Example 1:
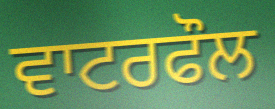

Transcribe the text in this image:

ਵਾਟਰਫੌਲ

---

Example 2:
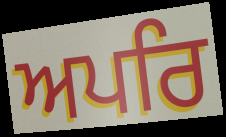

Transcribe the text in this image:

ਅਪਰਿ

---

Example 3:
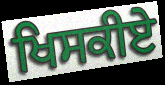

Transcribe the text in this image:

ਖਿਸਕੀਏ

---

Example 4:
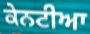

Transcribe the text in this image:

ਕੇਨਟੀਆ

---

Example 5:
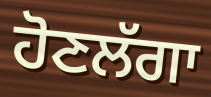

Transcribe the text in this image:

ਹੋਣਲੱਗਾ